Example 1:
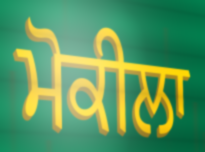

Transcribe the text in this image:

ਮੋਕੀਲਾ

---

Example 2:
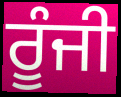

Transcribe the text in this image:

ਰੂੰਜੀ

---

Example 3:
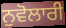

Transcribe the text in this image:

ਨੁਵੋਲਾਰੀ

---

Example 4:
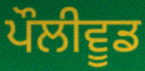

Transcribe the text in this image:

ਪੌਲੀਵੂਡ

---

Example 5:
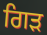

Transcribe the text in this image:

ਗਿੜ